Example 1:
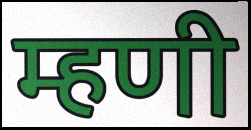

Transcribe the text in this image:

म्हणी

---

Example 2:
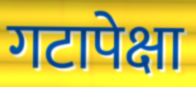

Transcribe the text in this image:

गटापेक्षा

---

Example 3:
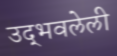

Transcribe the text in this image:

उद्‌भवलेली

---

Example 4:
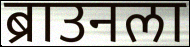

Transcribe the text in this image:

ब्राउनला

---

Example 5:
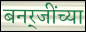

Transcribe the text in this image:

बनर्जींच्या